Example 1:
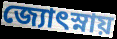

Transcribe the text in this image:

জ্যোৎস্নায়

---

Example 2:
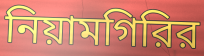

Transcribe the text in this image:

নিয়ামগিরির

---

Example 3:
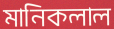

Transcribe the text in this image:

মানিকলাল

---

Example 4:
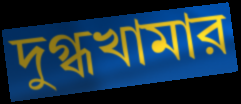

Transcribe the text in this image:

দুগ্ধখামার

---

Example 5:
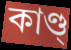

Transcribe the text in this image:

কাণ্ড্